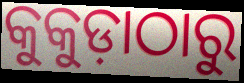
କୁକୁଡ଼ାଠାରୁ